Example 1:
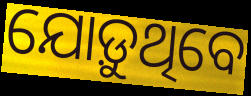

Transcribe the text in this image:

ଯୋଡ଼ୁଥିବେ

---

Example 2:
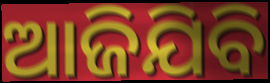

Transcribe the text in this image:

ଆଜିଯିବି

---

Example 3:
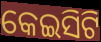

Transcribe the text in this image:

କେଇସିଟି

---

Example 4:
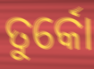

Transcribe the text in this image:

ତୁର୍କୋ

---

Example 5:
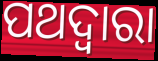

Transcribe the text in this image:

ପଥଦ୍ଵାରା